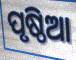
ପୃଷ୍ଠିଆ